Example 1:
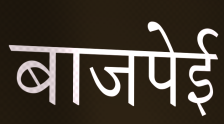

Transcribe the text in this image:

बाजपेई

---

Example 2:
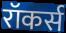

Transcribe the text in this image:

रॉकर्स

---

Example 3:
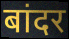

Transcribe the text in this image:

बांदर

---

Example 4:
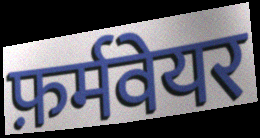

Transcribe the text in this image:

फ़र्मवेयर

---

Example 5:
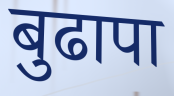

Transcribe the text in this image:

बुढापा